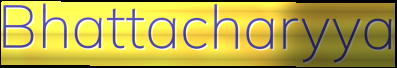
Bhattacharyya